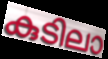
കുടിലാ